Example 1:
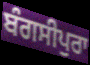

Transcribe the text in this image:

ਬੰਗਸੀਪੁਰਾ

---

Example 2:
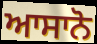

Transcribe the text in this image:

ਆਸਾਨੋ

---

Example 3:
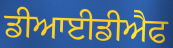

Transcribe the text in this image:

ਡੀਆਈਡੀਐਫ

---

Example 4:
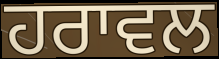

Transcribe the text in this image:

ਹਰਾਵਲ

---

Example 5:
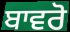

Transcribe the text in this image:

ਬਾਵਰੋ